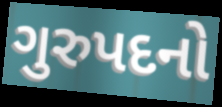
ગુરુપદનો